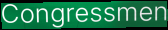
Congressmen